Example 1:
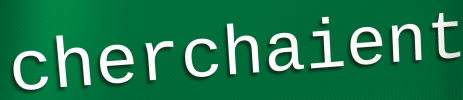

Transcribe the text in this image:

cherchaient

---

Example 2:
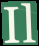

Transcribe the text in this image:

Il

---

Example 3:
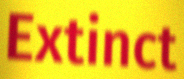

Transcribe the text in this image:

Extinct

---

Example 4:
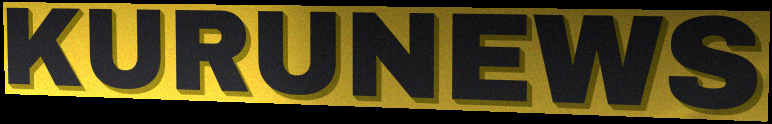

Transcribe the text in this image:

KURUNEWS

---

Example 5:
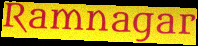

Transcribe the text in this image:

Ramnagar